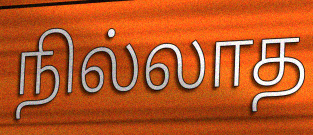
நில்லாத